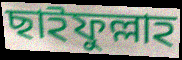
ছাইফুল্লাহ